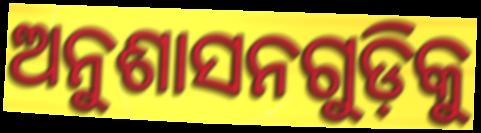
ଅନୁଶାସନଗୁଡ଼ିକୁ